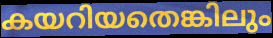
കയറിയതെങ്കിലും